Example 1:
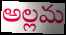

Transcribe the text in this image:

అల్లమ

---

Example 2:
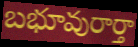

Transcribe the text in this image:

బభూవురార్తా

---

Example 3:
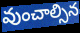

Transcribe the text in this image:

వుంచాల్సిన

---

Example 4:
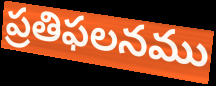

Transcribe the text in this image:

ప్రతిఫలనము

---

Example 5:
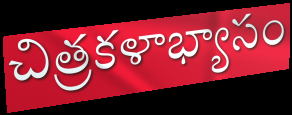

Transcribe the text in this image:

చిత్రకళాభ్యాసం